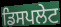
ਡਿਸਪਲੇਟ